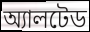
অ্যালটেড